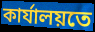
কাৰ্যালয়তে